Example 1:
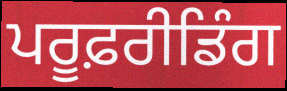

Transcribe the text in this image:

ਪਰੂਫ਼ਰੀਡਿੰਗ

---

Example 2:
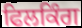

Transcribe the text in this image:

ਫਿਲਕਿੰਗ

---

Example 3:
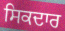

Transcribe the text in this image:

ਸਿਕਦਾਰ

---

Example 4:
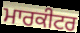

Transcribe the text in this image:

ਮਾਰਕੀਟਰ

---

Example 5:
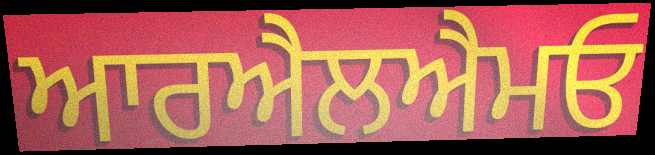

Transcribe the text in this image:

ਆਰਐਲਐਮਓ